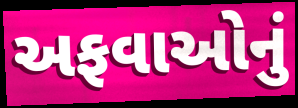
અફવાઓનું